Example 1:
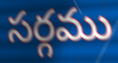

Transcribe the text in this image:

సర్గము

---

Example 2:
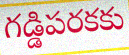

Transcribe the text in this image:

గడ్డిపరకకు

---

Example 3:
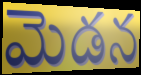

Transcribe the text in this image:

మెడన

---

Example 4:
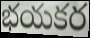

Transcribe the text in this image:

భయకర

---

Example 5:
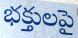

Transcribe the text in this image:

భక్తులపై